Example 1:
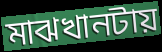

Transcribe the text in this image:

মাঝখানটায়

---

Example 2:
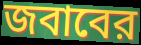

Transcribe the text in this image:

জবাবের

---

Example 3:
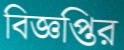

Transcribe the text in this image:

বিজ্ঞপ্তির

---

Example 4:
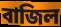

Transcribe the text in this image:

বাজিল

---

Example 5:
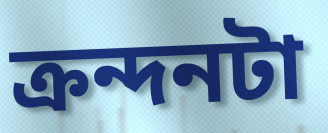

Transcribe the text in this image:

ক্রন্দনটা